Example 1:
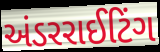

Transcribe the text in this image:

અંડરરાઈટિંગ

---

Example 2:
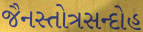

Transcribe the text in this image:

જૈનસ્તોત્રસન્દોહ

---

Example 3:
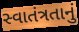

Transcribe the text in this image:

સ્વાતંત્રતાનું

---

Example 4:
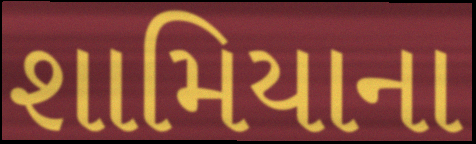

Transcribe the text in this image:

શામિયાના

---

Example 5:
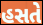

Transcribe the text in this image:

હસતે